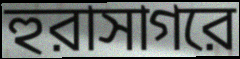
হুরাসাগরে